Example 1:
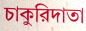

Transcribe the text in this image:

চাকুরিদাতা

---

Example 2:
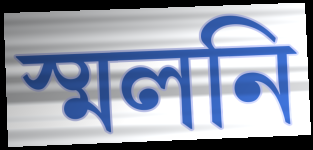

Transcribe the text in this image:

স্মলনি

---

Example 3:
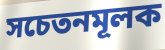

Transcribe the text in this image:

সচেতনমূলক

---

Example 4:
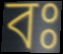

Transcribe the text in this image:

বঃ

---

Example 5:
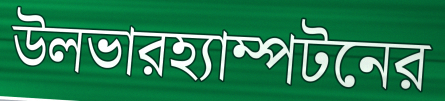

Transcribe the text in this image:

উলভারহ্যাম্পটনের